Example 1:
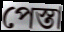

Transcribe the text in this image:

পেস্তা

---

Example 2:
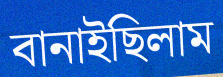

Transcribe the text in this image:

বানাইছিলাম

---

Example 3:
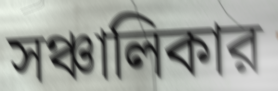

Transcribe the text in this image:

সঞ্চালিকার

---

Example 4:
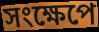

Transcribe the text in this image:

সংক্ষেপে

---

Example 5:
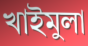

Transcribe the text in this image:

খাইমুলা